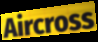
Aircross